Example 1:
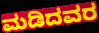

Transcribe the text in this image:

ಮಡಿದವರ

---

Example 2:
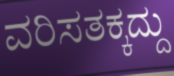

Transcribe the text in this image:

ವರಿಸತಕ್ಕದ್ದು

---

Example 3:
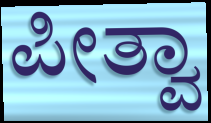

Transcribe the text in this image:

ಪೀತ್ವಾ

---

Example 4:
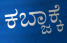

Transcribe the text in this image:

ಕಬ್ಜಾಕ್ಕೆ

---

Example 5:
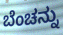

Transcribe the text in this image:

ಬೆಂಚನ್ನು